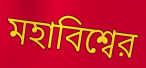
মহাবিশ্বের